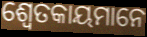
ଶ୍ୱେତକାୟମାନେ